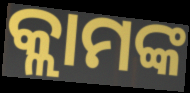
କ୍ଲାମଙ୍କ